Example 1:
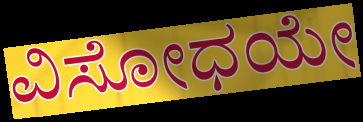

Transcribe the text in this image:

ವಿಸೋಧಯೇ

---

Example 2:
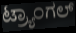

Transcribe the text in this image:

ಟ್ರ್ಯಾಂಗಲ್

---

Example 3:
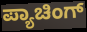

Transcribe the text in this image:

ಪ್ಯಾಚಿಂಗ್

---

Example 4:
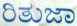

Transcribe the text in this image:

ರಿತುಜಾ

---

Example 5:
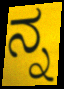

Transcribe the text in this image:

ನ್ನ